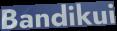
Bandikui